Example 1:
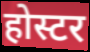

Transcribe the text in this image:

होस्टर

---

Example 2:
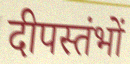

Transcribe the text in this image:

दीपस्तंभों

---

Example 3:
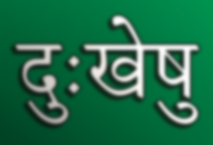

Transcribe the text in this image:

दुःखेषु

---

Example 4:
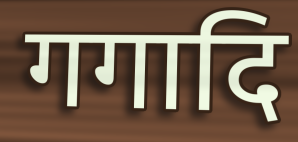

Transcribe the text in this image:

गगादि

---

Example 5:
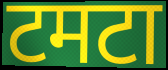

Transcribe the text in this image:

टमटा